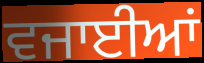
ਵਜਾਈਆਂ